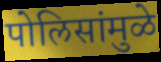
पोलिसांमुळे